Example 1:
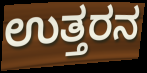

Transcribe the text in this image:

ಉತ್ತರನ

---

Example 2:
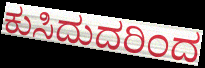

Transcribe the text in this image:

ಕುಸಿದುದರಿಂದ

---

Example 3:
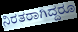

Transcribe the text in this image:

ನಿರತರಾಗಿದ್ದರೂ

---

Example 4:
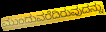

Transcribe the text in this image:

ಮುಂದುವರೆದಿರುವುದನ್ನು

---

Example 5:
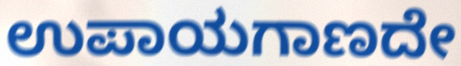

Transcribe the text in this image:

ಉಪಾಯಗಾಣದೇ